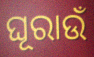
ଘୂରାଉଁ